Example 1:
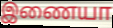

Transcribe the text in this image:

இணையா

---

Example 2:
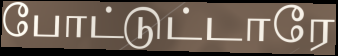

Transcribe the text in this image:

போட்டுட்டாரே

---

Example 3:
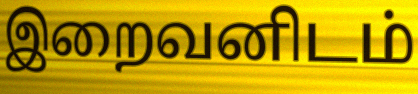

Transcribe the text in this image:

இறைவனிடம்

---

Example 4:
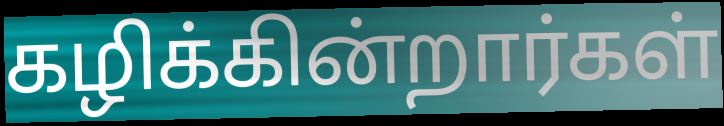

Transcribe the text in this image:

கழிக்கின்றார்கள்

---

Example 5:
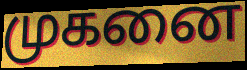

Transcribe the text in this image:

முகனை